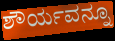
ಶೌರ್ಯವನ್ನೂ